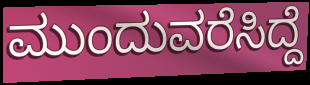
ಮುಂದುವರೆಸಿದ್ದೆ